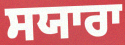
ਸਯਾਰਾ